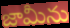
జామీను